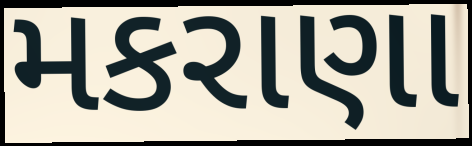
મકરાણા